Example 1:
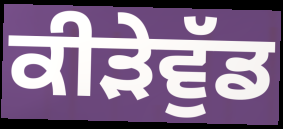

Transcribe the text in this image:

ਕੀੜੇਵੁੱਡ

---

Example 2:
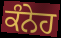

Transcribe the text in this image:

ਕੰਨੇਹ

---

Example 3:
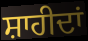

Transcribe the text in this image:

ਸ਼ਾਹੀਦਾਂ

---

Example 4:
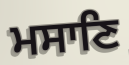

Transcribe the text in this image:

ਮਸਾਣਿ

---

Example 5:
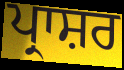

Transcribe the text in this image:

ਪ੍ਰਾਸ਼ਰ